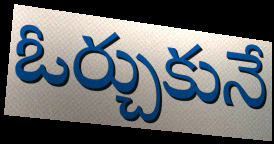
ఓర్చుకునే